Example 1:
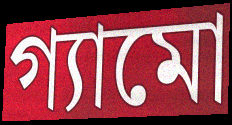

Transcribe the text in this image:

গ্যামো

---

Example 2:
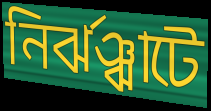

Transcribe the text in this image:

নির্ঝঞ্ঝাটে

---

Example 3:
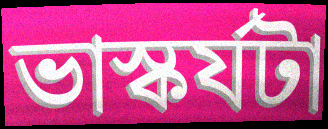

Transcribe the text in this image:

ভাস্কর্যটা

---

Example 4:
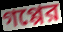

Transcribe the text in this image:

গপ্পের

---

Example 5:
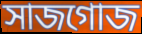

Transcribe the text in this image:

সাজগোজ